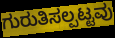
ಗುರುತಿಸಲ್ಪಟ್ಟವು